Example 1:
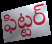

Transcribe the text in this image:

ఫిట్టర్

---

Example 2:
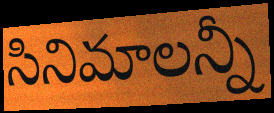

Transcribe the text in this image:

సినిమాలన్నీ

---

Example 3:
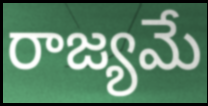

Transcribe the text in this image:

రాజ్యమే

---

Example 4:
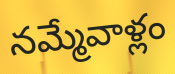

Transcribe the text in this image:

నమ్మేవాళ్లం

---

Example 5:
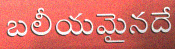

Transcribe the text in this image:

బలీయమైనదే